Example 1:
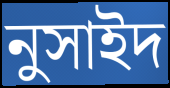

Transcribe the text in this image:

নুসাইদ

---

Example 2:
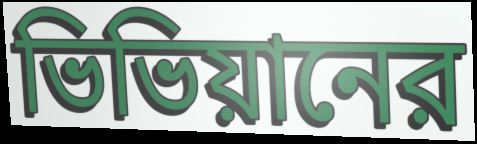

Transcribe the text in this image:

ভিভিয়ানের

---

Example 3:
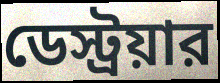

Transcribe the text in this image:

ডেস্ট্রয়ার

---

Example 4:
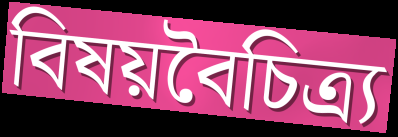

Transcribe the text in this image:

বিষয়বৈচিত্র্য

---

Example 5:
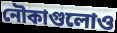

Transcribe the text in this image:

নৌকাগুলোও